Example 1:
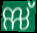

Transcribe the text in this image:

സ്സ്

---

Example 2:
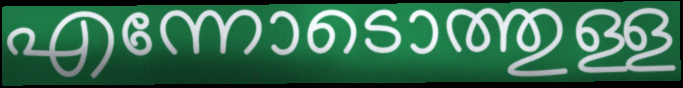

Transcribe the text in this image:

എന്നോടൊത്തുള്ള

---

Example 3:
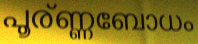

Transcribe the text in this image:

പൂര്ണ്ണബോധം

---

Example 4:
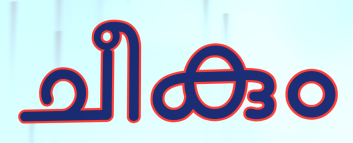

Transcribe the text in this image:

ചീകും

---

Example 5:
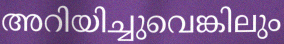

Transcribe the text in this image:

അറിയിച്ചുവെങ്കിലും